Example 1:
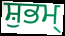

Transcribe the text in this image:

ਸ਼ੁਭਮ੍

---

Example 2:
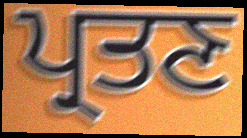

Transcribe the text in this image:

ਪ੍ਰਤਣ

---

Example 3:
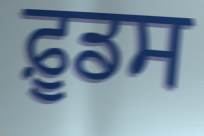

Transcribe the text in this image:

ਫ਼ੂਡਸ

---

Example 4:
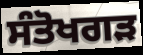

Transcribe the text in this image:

ਸੰਤੋਖਗੜ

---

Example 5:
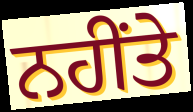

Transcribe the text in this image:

ਨਹੀਂਤੇ